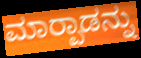
ಮಾರ‍್ಪಾಡನ್ನು